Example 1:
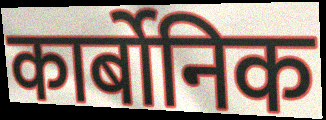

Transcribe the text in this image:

कार्बोनिक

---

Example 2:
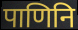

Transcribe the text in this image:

पाणिनि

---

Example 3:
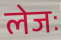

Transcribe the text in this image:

लेजः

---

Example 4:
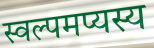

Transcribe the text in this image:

स्वल्पमप्यस्य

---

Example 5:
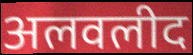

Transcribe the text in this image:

अलवलीद